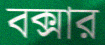
বক্সার